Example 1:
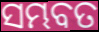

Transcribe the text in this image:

ସମ୍ଭବତ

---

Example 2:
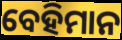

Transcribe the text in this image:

ବେହିମାନ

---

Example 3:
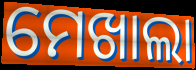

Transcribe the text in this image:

ମେଖାଲା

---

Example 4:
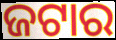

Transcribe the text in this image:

ଜଟାର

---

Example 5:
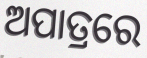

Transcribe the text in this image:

ଅପାତ୍ରରେ